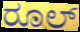
ರೂಲ್